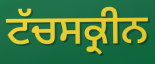
ਟੱਚਸਕ੍ਰੀਨ